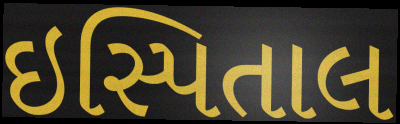
ઇસ્પિતાલ